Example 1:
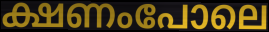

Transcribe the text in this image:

ക്ഷണംപോലെ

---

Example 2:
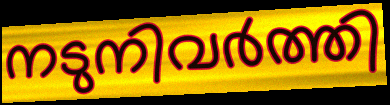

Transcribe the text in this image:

നടുനിവർത്തി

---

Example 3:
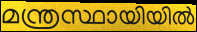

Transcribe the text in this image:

മന്ത്രസ്ഥായിയിൽ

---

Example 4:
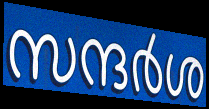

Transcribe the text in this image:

സന്ദർശ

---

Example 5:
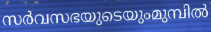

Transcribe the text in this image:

സർവസഭയുടെയുംമുമ്പിൽ